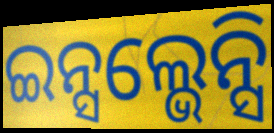
ଇନ୍ସଲ୍ଭେନ୍ସି